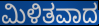
ಮಿಳಿತವಾದ